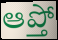
ఆప్తో